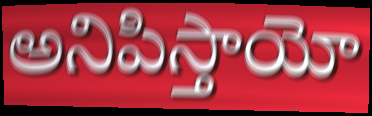
అనిపిస్తాయో